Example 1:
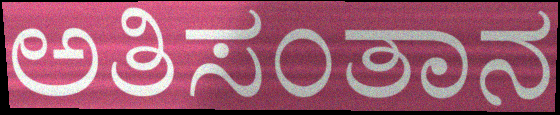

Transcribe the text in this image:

ಅತಿಸಂತಾನ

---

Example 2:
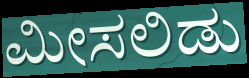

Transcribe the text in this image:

ಮೀಸಲಿಡು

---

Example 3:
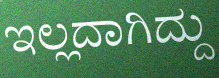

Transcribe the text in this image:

ಇಲ್ಲದಾಗಿದ್ದು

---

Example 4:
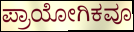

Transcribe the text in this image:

ಪ್ರಾಯೋಗಿಕವೂ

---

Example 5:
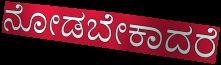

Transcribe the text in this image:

ನೋಡಬೇಕಾದರೆ